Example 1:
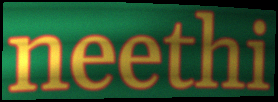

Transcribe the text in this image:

neethi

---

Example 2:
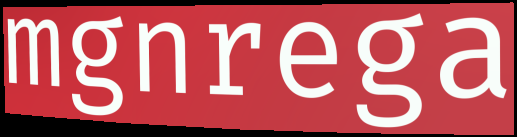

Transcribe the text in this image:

mgnrega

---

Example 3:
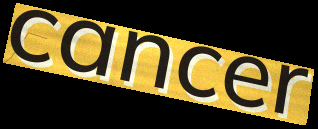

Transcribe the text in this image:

cancer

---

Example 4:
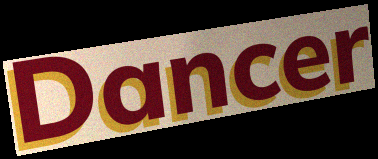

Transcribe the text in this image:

Dancer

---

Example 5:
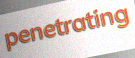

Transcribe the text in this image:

penetrating